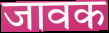
जावक